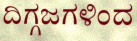
ದಿಗ್ಗಜಗಳಿಂದ